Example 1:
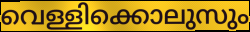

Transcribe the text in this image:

വെള്ളിക്കൊലുസും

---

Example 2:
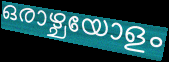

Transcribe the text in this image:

ഒരാഴ്ചയോളം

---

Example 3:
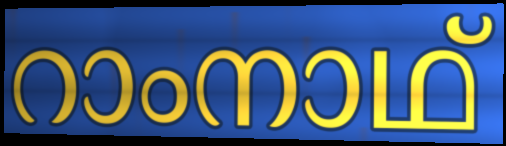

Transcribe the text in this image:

റാംനാഥ്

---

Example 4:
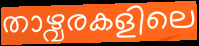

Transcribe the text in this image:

താഴ്വരകളിലെ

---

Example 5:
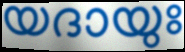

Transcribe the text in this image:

യദായുഃ